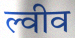
ल्वीव